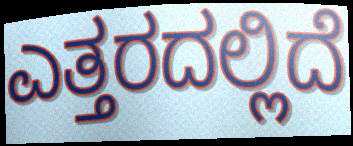
ಎತ್ತರದಲ್ಲಿದೆ